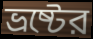
ভ্রষ্টের